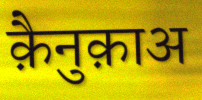
क़ैनुक़ाअ